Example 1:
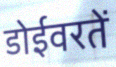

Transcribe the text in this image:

डोईवरतें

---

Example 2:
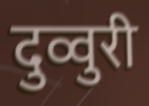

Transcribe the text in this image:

दुव्वुरी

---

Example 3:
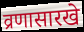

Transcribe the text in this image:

व्रणासारखे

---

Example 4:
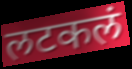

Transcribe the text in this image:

लटकलं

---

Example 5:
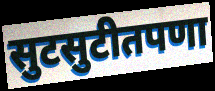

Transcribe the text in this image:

सुटसुटीतपणा